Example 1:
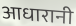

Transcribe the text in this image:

आधारानी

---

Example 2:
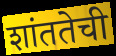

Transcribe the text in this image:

शांततेची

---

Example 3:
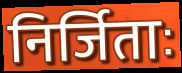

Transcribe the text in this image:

निर्जिताः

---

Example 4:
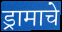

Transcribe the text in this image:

ड्रामाचे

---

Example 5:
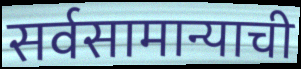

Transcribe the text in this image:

सर्वसामान्याची